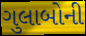
ગુલાબોની